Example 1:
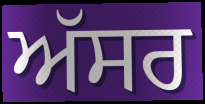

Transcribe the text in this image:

ਅੱਸਰ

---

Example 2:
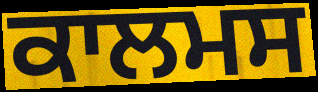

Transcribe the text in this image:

ਕਾਲਮਸ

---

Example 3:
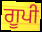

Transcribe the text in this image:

ਗੂਪੀ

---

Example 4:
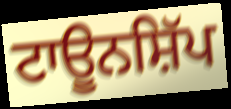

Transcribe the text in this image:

ਟਾਊਨਸ਼ਿੱਪ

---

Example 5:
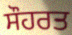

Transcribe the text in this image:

ਸੌਹਰਤ